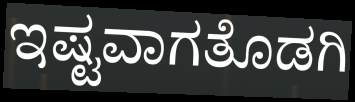
ಇಷ್ಟವಾಗತೊಡಗಿ